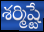
శర్మిష్టే